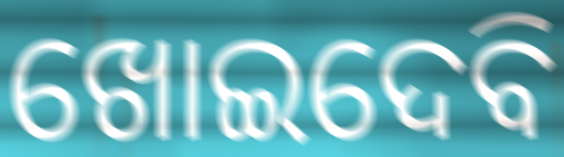
ଖୋଇଦେବି